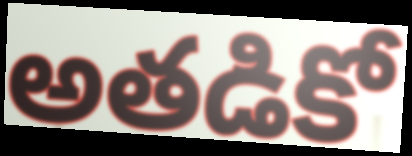
అతడికో